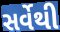
સર્વેથી